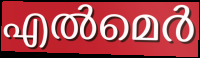
എൽമെർ